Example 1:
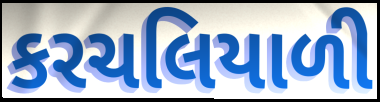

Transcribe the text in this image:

કરચલિયાળી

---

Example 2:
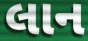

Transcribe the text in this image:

લાન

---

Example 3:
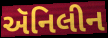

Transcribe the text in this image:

ઍનિલીન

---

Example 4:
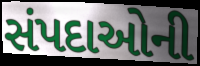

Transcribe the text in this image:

સંપદાઓની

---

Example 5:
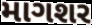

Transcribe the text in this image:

માગશર